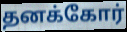
தனக்கோர்